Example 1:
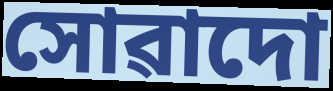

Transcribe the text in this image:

সোৱাদো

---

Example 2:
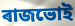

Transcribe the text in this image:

ৰাজভোই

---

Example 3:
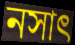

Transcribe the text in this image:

নসাৎ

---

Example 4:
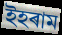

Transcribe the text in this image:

ইহৰাম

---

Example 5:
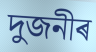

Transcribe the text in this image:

দুজনীৰ